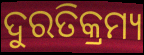
ଦୁରତିକ୍ରମ୍ୟ